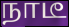
நாடீ